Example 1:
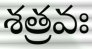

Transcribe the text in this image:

శత్రవః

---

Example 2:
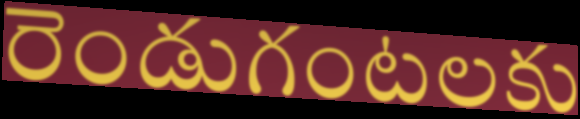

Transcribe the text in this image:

రెండుగంటలకు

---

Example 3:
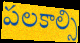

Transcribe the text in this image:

పలకాల్సి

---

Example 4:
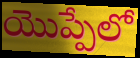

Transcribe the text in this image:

యొప్పేలో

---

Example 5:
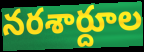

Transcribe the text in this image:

నరశార్దూల